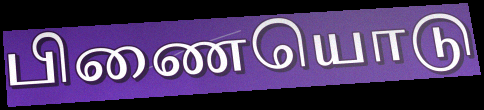
பிணையொடு